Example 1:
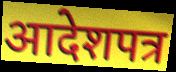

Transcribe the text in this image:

आदेशपत्र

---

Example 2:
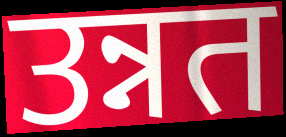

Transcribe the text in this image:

उन्नत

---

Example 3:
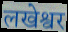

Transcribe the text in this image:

लखेश्वर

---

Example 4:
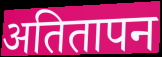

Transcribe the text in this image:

अतितापन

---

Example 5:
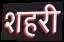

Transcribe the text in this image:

शहरी